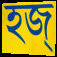
হজ্